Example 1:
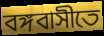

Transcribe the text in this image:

বঙ্গবাসীতে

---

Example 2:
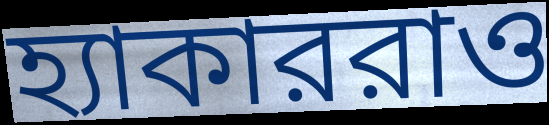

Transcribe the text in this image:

হ্যাকাররাও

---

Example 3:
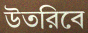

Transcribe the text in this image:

উতরিবে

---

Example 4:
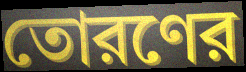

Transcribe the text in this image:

তোরণের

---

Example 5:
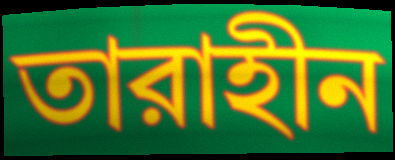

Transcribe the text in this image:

তারাহীন